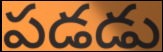
పడడు